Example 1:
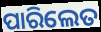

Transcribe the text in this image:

ପାରିଲେତ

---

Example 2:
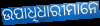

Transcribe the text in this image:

ଉପାଧିଧାରୀମାନେ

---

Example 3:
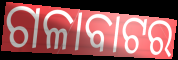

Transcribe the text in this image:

ଗଳାବାଟର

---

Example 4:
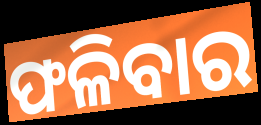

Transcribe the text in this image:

ଫଳିବାର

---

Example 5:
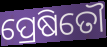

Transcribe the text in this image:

ପ୍ରେଷିତୌ